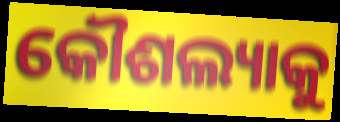
କୌଶଲ୍ୟାକୁ